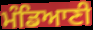
ਮੰਡਿਆਣੀ